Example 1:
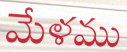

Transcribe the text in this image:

మేళము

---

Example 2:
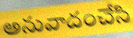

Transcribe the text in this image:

అనువాదంచేసి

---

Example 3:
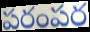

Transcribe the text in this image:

పరంపర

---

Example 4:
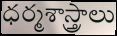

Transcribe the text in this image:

ధర్మశాస్త్రాలు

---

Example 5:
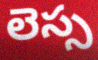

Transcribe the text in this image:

లెస్స